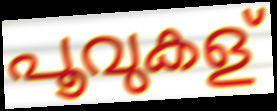
പൂവുകള്